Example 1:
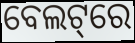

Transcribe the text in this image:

ବେଲଟ୍‌ରେ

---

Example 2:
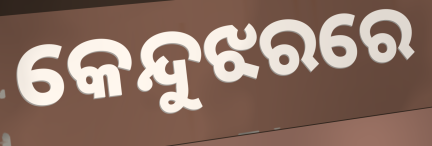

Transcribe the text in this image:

କେନ୍ଦୁଝରରେ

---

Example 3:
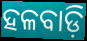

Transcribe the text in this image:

ହଳବାଡ଼ି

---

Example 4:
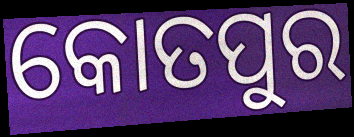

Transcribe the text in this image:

କୋତପୁର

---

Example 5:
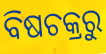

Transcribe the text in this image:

ବିଷଚକ୍ରରୁ